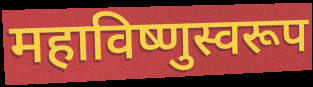
महाविष्णुस्वरूप